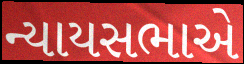
ન્યાયસભાએ